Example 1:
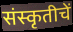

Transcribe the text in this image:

संस्कृतीचें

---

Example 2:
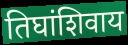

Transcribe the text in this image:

तिघांशिवाय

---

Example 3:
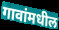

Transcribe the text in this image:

गावांमधील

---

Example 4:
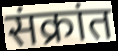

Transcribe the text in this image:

संक्रांत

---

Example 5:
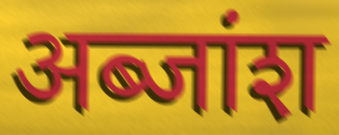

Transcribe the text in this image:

अब्जांश